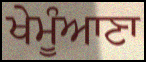
ਖੇਮੂੰਆਣਾ